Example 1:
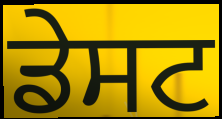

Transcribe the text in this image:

ਡੇਸਟ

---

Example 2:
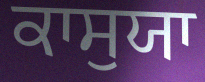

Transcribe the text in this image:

ਕਾਸੁਯਾ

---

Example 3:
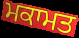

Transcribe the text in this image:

ਮਕਾਮਤ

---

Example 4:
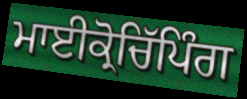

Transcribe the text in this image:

ਮਾਈਕ੍ਰੋਚਿੱਪਿੰਗ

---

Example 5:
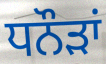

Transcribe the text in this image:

ਧਨੌੜਾਂ